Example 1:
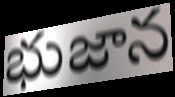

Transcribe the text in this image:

భుజాన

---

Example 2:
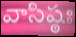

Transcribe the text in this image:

వాసిష్ఠః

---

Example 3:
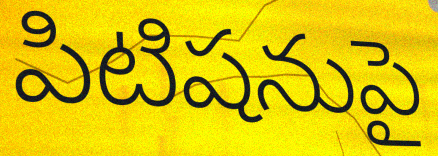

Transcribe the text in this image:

పిటిషనుపై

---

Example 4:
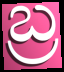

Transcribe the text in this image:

బ్ర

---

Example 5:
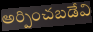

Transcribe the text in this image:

అర్పించబడేవి